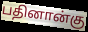
பதினான்கு